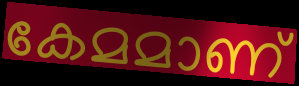
കേമമാണ്